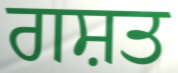
ਗਸ਼ਤ